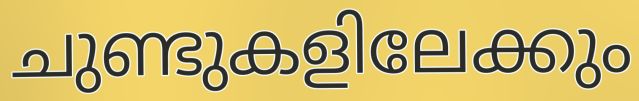
ചുണ്ടുകളിലേക്കും